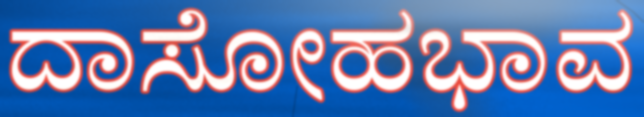
ದಾಸೋಹಭಾವ